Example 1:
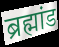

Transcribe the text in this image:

ब्रह्मांड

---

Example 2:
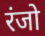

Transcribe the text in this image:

रंजो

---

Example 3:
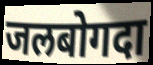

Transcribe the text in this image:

जलबोगदा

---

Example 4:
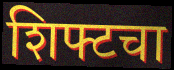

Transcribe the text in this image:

शिफ्टचा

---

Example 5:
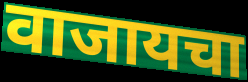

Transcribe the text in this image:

वाजायचा